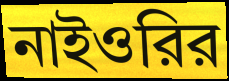
নাইওরির